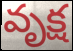
వృక్ష